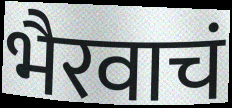
भैरवाचं